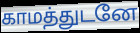
காமத்துடனே